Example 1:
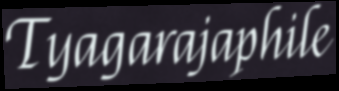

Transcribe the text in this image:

Tyagarajaphile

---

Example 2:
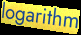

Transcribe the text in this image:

logarithm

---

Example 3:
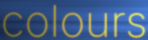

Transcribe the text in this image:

colours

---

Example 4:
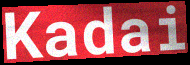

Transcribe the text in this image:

Kadai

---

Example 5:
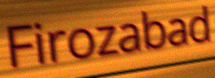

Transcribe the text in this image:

Firozabad